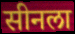
सीनला